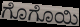
ಗೊಗೊಯಿ